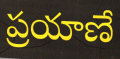
ప్రయాణే